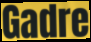
Gadre